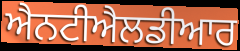
ਐਨਟੀਐਲਡੀਆਰ